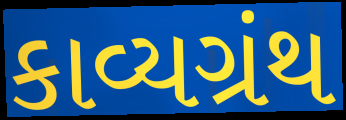
કાવ્યગ્રંથ